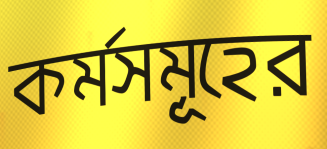
কর্মসমূহের